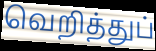
வெறித்துப்